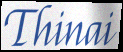
Thinai